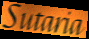
Sutaria